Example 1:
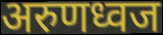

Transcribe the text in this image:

अरुणध्वज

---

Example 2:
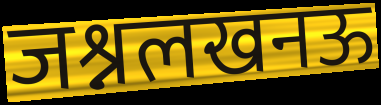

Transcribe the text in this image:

जश्नलखनऊ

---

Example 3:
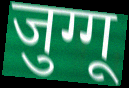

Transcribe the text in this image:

जुग्गू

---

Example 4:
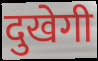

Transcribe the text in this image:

दुखेगी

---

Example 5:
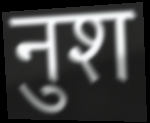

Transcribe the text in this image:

नुश